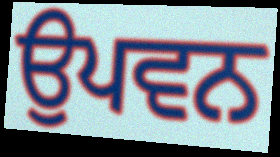
ਉਪਵਨ